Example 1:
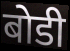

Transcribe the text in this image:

बोडी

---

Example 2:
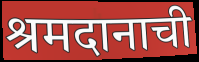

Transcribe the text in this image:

श्रमदानाची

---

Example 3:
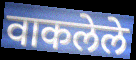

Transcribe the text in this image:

वाकलेले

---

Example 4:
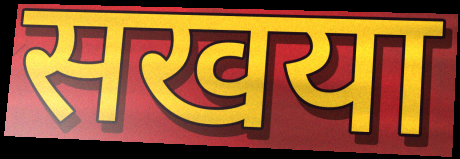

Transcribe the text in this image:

सखया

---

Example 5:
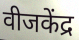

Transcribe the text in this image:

वीजकेंद्र